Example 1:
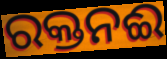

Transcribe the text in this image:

ରକ୍ତନଈ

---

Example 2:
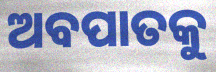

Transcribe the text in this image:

ଅବପାତକୁ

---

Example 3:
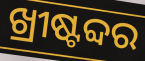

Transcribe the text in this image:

ଖ୍ରୀଷ୍ଟବ୍ଦର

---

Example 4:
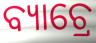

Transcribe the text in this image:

ବ୍ୟାଚ୍ରେ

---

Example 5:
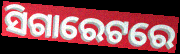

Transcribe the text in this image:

ସିଗାରେଟରେ